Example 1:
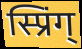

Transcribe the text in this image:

स्प्रिंग्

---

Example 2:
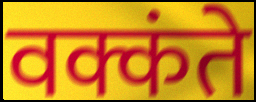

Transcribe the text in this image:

वक्कंते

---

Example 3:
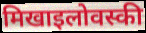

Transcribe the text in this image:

मिखाइलोवस्की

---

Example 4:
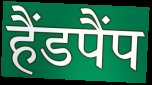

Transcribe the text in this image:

हैंडपैंप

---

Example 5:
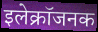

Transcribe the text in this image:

इलेक्रॉजनक